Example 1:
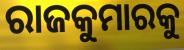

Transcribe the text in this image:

ରାଜକୁମାରକୁ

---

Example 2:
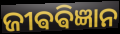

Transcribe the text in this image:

ଜୀଵଵିଜ୍ଞାନ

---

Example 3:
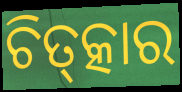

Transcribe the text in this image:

ଚିତ୍‌ତ୍କାର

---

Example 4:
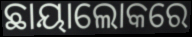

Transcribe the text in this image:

ଛାୟାଲୋକରେ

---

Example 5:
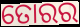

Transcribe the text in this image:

ତୋରର